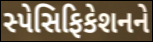
સ્પેસિફિકેશનને